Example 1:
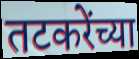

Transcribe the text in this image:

तटकरेंच्या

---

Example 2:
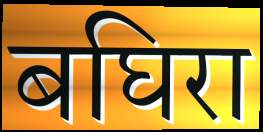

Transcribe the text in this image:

बघिरा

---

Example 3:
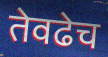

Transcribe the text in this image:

तेवढेच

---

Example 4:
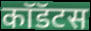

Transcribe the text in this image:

कॉडॅटस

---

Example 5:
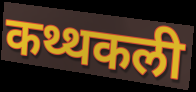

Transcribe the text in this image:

कथ्थकली